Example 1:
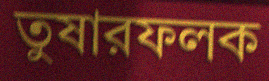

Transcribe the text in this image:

তুষারফলক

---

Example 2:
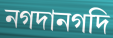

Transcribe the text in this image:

নগদানগদি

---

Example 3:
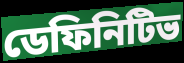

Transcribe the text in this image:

ডেফিনিটিভ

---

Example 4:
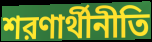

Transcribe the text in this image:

শরণার্থীনীতি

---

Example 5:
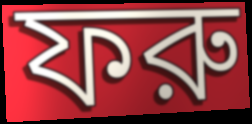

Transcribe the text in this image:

ফরু